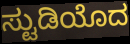
ಸ್ಟುಡಿಯೊದ